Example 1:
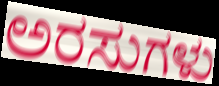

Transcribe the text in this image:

ಅರಸುಗಳು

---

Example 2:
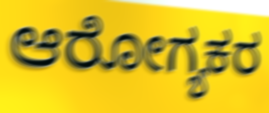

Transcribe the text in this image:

ಆರೋಗ್ಯಕರ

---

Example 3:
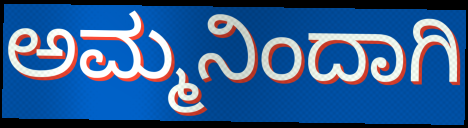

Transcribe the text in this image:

ಅಮ್ಮನಿಂದಾಗಿ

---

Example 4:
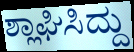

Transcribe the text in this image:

ಶ್ಲಾಘಿಸಿದ್ದು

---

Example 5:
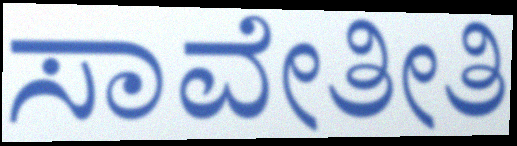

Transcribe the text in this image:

ಸಾವೇತೀತಿ